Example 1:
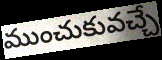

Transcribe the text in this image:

ముంచుకువచ్చే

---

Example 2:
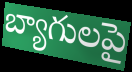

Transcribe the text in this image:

బ్యాగులపై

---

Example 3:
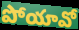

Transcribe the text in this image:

పోయావో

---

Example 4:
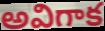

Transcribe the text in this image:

అవిగాక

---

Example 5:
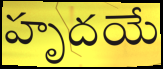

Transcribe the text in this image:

హృదయే